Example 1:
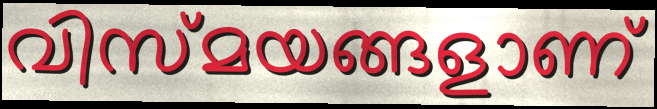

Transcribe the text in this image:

വിസ്മയങ്ങളാണ്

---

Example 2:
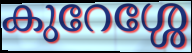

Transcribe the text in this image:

കുറേശ്ശേ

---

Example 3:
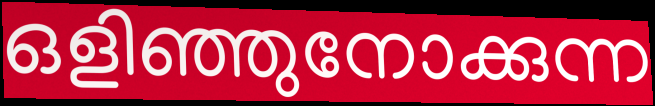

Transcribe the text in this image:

ഒളിഞ്ഞുനോക്കുന്ന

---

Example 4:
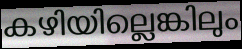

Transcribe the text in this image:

കഴിയില്ലെങ്കിലും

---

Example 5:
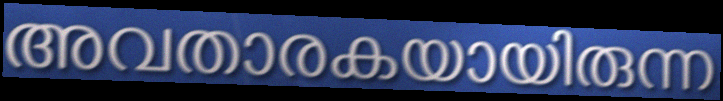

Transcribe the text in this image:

അവതാരകയായിരുന്ന